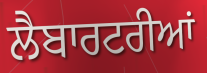
ਲੈਬਾਰਟਰੀਆਂ